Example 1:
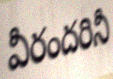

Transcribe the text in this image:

వీరందరినీ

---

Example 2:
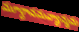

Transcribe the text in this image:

మూర్ధానమవ్యాన్మమ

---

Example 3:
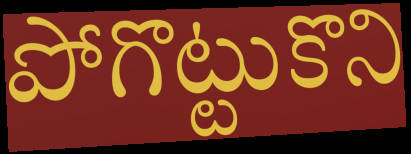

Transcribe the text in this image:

పోగొట్టుకొని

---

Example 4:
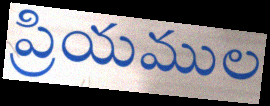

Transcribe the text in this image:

ప్రియముల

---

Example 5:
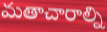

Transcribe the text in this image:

మతాచారాల్ని